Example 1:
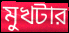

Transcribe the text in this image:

মুখটার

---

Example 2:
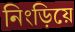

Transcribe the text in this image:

নিংড়িয়ে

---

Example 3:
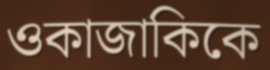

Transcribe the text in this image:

ওকাজাকিকে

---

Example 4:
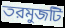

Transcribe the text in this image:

তরমুজটি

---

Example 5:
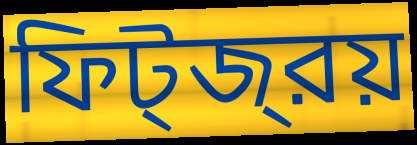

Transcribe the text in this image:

ফিট্‌জ্‌রয়